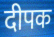
दीपक